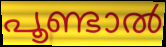
പൂണ്ടാൽ